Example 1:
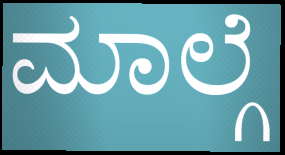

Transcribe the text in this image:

ಮಾಲ್ಗೆ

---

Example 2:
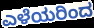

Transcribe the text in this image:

ಎಳೆಯರಿಂದ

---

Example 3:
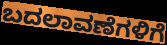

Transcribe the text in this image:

ಬದಲಾವಣೆಗಳಿಗೆ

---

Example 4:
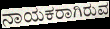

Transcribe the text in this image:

ನಾಯಕರಾಗಿರುವ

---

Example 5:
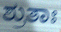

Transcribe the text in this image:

ಶ್ರುತಾಃ